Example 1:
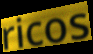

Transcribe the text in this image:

ricos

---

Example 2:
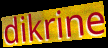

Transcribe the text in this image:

dikrine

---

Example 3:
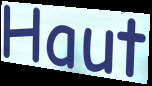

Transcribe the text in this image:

Haut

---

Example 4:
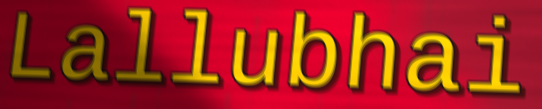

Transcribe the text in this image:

Lallubhai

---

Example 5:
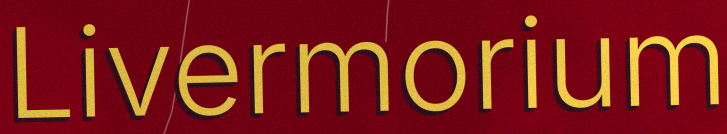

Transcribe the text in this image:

Livermorium